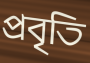
প্রবৃতি